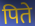
पिते